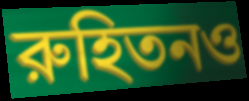
রুহিতনও